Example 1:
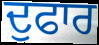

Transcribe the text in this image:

ਦੁਫਾਰ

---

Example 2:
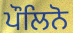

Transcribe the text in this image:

ਪੌਲਿਨੋ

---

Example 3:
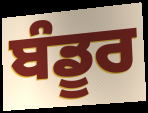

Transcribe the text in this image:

ਬੰਡੂਰ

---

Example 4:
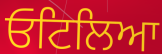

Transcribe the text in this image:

ਓਟਿਲਿਆ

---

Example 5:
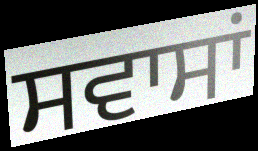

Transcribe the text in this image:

ਸਵਾਸਾਂ